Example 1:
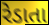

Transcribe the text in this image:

રેડાતા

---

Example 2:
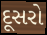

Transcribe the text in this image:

દૂસરો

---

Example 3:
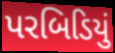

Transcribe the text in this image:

પરબિડિયું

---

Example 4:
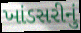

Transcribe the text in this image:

ખાંડસરીનું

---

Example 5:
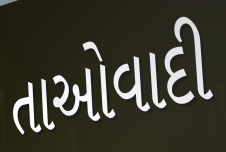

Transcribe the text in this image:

તાઓવાદી